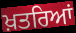
ਖ਼ਤਰਿਆਂ